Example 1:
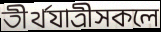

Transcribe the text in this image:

তীৰ্থযাত্ৰীসকলে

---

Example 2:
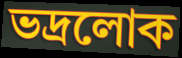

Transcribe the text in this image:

ভদ্ৰলোক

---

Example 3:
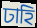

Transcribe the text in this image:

ঢাহি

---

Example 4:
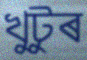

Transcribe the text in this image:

খুটুৰ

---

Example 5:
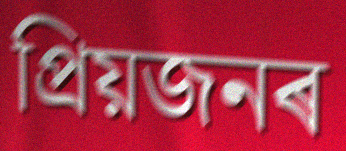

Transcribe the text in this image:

প্ৰিয়জনৰ